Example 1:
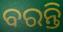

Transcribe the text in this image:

ବରନ୍ତି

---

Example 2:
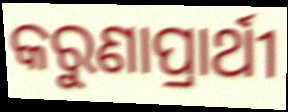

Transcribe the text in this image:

କରୁଣାପ୍ରାର୍ଥୀ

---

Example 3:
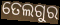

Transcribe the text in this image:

ତେଲଗୁର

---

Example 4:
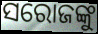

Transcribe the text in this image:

ସରୋଜଙ୍କୁ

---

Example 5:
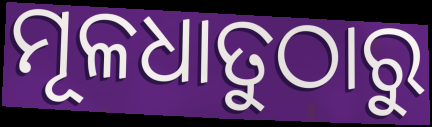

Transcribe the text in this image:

ମୂଳଧାତୁଠାରୁ